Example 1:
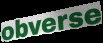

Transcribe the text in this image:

obverse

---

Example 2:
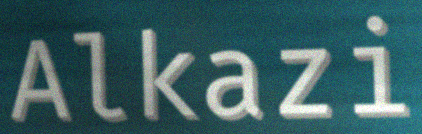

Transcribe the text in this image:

Alkazi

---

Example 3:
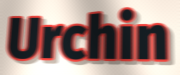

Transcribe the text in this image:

Urchin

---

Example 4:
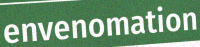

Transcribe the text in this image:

envenomation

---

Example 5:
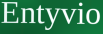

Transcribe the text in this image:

Entyvio